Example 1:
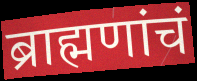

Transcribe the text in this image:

ब्राह्मणांचं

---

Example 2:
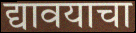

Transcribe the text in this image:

द्यावयाचा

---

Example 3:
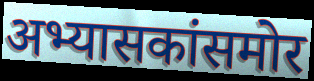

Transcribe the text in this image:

अभ्यासकांसमोर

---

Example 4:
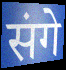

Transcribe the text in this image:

संगे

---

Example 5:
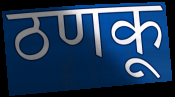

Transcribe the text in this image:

ठणकू